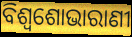
ବିଶ୍ୱଶୋଭାରାଣୀ